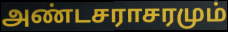
அண்டசராசரமும்